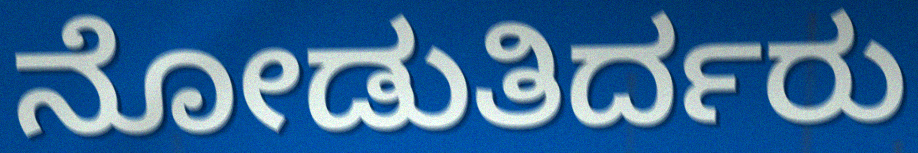
ನೋಡುತಿರ್ದರು